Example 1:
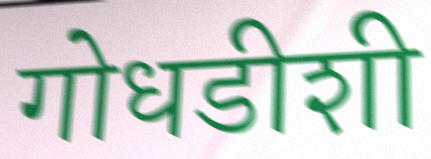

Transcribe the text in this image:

गोधडीशी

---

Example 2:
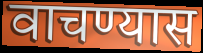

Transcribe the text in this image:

वाचण्यास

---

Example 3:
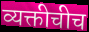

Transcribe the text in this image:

व्यक्तीचीच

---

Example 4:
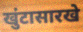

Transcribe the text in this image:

खुंटासारखे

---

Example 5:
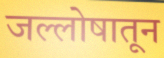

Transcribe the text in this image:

जल्लोषातून